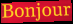
Bonjour